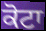
ਕੋਟਾ